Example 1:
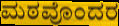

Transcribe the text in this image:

ಮಠವೊಂದರ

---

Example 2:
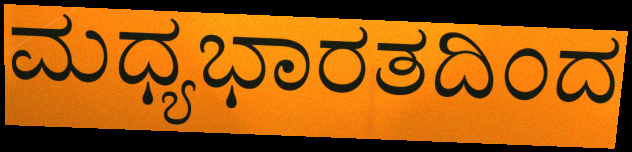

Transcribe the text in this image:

ಮಧ್ಯಭಾರತದಿಂದ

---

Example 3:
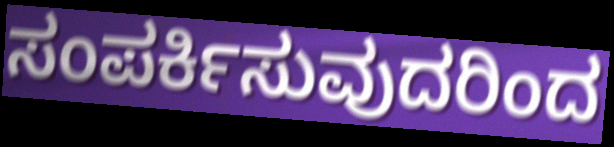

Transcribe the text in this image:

ಸಂಪರ್ಕಿಸುವುದರಿಂದ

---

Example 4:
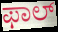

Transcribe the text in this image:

ಫಾಲ್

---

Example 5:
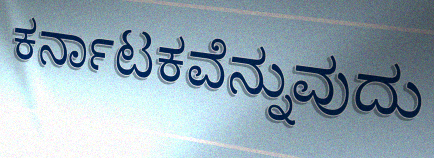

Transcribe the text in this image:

ಕರ್ನಾಟಕವೆನ್ನುವುದು